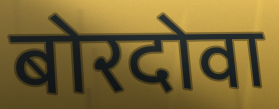
बोरदोवा